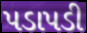
પડાપડી